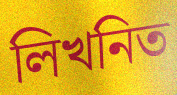
লিখনিত